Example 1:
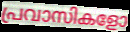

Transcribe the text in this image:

പ്രവാസികളോ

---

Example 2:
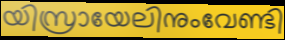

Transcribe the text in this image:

യിസ്രായേലിനുംവേണ്ടി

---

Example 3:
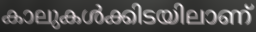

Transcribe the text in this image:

കാലുകൾക്കിടയിലാണ്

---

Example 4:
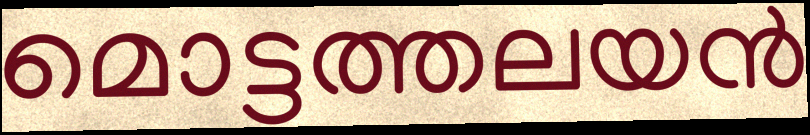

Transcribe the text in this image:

മൊട്ടത്തലയൻ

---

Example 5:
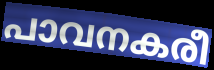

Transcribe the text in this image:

പാവനകരീ